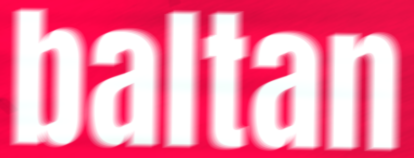
baltan